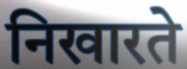
निखारते